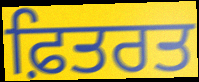
ਫ਼ਿਤਰਤ